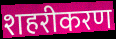
शहरीकरण